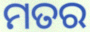
ମତର